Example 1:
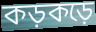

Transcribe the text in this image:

কড়কড়ে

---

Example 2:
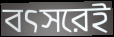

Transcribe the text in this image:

বৎসরেই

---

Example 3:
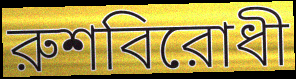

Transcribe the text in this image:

রুশবিরোধী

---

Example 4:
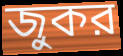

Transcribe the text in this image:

জুকর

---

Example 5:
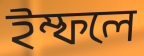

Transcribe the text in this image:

ইম্ফলে